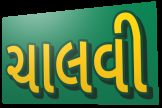
ચાલવી